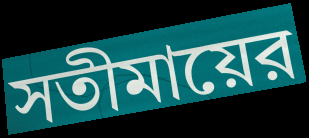
সতীমায়ের